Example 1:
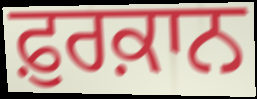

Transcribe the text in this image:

ਫ਼ੁਰਕ਼ਾਨ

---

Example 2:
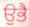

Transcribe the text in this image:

ਉਭੈ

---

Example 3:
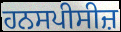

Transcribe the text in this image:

ਹਨਸਪੀਸੀਜ਼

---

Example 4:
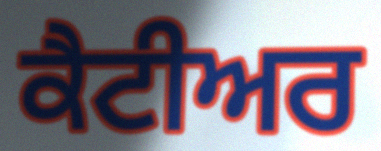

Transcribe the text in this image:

ਕੈਟੀਅਰ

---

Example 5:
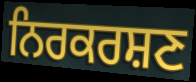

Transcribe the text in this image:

ਨਿਰਕਰਸ਼ਣ